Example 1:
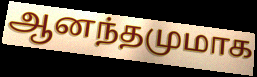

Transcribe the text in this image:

ஆனந்தமுமாக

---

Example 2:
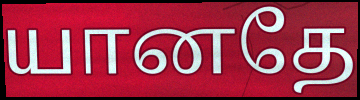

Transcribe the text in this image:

யானதே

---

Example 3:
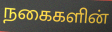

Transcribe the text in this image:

நகைகளின்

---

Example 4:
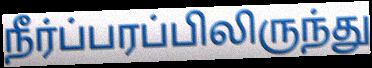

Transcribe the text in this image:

நீர்ப்பரப்பிலிருந்து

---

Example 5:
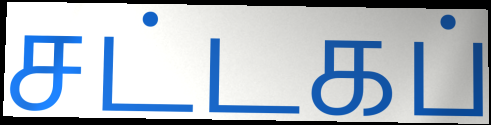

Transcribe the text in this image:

சட்டகப்